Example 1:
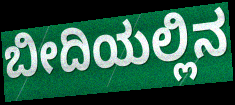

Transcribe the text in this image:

ಬೀದಿಯಲ್ಲಿನ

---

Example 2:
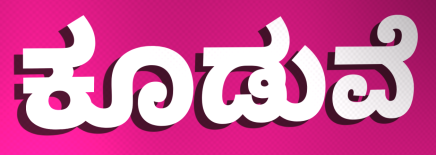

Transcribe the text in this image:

ಕೂಡುವೆ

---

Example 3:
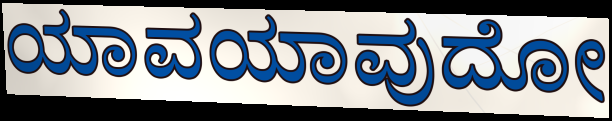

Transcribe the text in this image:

ಯಾವಯಾವುದೋ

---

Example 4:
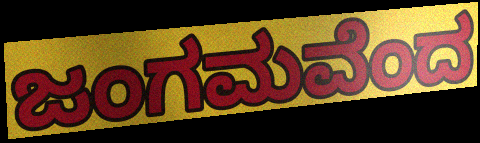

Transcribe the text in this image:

ಜಂಗಮವೆಂದ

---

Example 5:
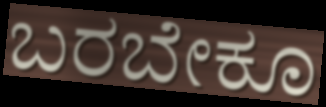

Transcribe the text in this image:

ಬರಬೇಕೂ